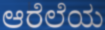
ಆರೆಲೆಯ